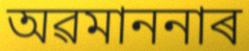
অৱমাননাৰ